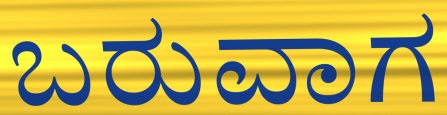
ಬರುವಾಗ